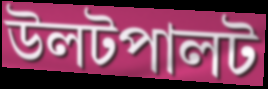
উলটপালট